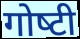
गोष्‍टी